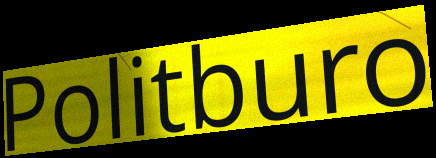
Politburo